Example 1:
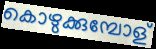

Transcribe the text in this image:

കൊഴുക്കുമ്പോള്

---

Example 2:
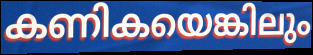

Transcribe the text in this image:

കണികയെങ്കിലും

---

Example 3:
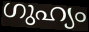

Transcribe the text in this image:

ഗുഹ്യം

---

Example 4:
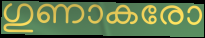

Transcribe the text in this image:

ഗുണാകരോ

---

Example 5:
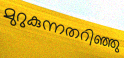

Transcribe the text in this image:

മുറുകുന്നതറിഞ്ഞു